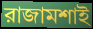
রাজামশাই